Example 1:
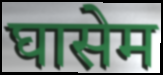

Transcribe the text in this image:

घासेम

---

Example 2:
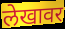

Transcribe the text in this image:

लेखावर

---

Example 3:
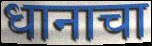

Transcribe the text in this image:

धानाचा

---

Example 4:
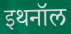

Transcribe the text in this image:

इथनॉल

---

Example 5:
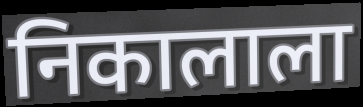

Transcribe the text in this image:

निकालाला